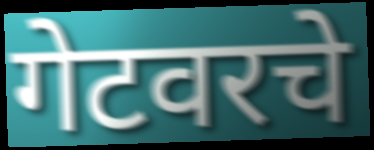
गेटवरचे